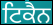
ਟਿਕੈਨ